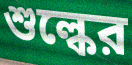
শুল্কের